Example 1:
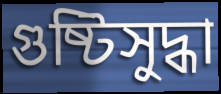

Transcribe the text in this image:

গুষ্টিসুদ্ধা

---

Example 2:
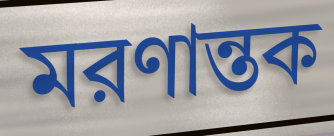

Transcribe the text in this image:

মরণান্তক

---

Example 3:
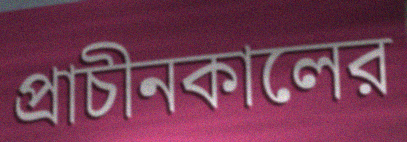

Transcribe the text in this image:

প্রাচীনকালের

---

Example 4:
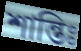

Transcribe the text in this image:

শান্তিঃ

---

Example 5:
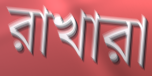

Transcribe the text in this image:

রাখারা